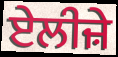
ਏਲੀਜ਼ੇ